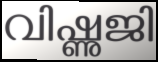
വിഷ്ണുജി